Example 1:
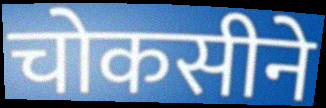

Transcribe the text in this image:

चोकसीने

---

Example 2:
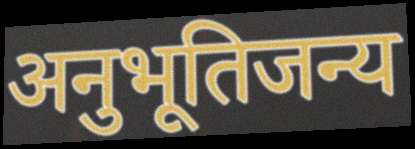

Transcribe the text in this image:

अनुभूतिजन्य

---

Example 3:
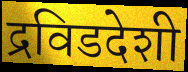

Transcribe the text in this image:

द्रविडदेशी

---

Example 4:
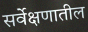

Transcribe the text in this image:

सर्वेक्षणातील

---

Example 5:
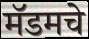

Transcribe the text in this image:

मॅडमचे